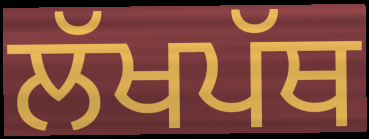
ਲੱਖਪੱਥ